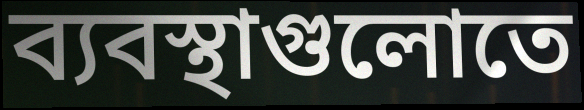
ব্যবস্থাগুলোতে